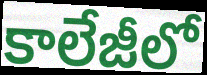
కాలేజీలో